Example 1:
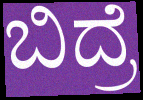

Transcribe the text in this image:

ಬಿದ್ರೆ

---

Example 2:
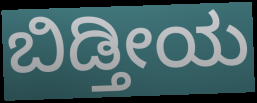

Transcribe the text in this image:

ಬಿಡ್ತೀಯ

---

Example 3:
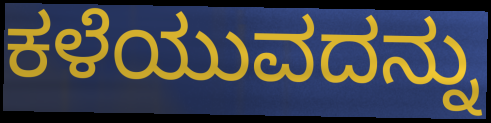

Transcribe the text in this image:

ಕಳೆಯುವದನ್ನು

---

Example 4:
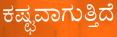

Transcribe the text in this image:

ಕಷ್ಟವಾಗುತ್ತಿದೆ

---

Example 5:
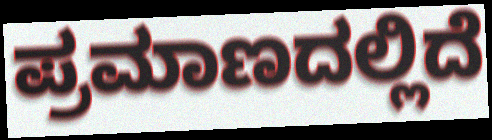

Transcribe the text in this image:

ಪ್ರಮಾಣದಲ್ಲಿದೆ